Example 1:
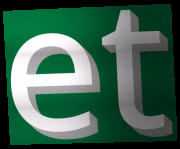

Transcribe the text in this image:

et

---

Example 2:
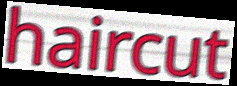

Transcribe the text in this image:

haircut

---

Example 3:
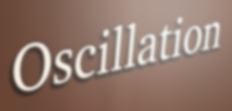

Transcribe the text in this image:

Oscillation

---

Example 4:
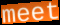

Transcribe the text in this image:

meet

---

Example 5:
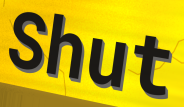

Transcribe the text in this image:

Shut